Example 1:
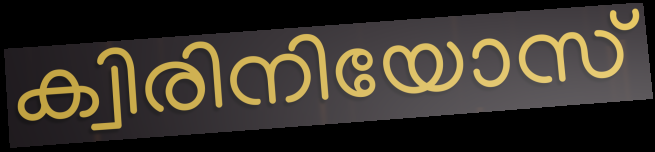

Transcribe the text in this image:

ക്വിരിനിയോസ്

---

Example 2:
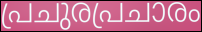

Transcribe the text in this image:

പ്രചുരപ്രചാരം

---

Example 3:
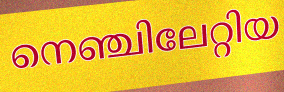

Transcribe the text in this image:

നെഞ്ചിലേറ്റിയ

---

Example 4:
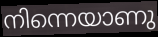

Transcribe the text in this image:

നിന്നെയാണു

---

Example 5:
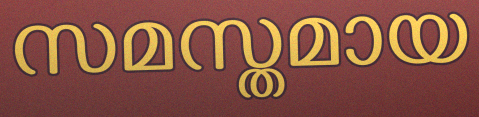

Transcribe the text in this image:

സമസ്തമായ